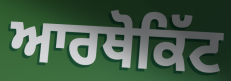
ਆਰਥੋਕਿੱਟ